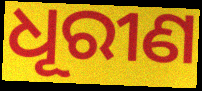
ଧୂରୀଣ